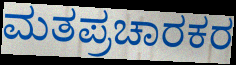
ಮತಪ್ರಚಾರಕರ